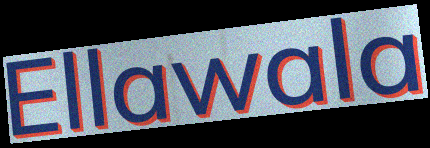
Ellawala